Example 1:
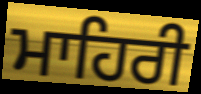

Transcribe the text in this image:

ਮਾਹਿਰੀ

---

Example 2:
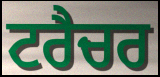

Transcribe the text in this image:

ਟਰੈਚਰ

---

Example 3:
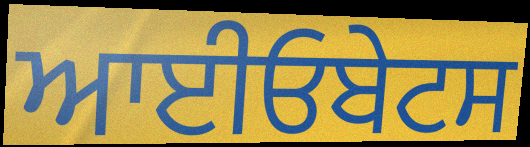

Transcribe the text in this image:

ਆਈਓਬੇਟਸ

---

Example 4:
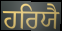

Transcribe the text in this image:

ਹਰਿਯੈ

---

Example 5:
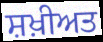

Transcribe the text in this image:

ਸ਼ਖ਼ੀਅਤ